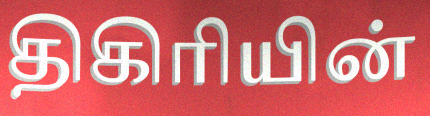
திகிரியின்